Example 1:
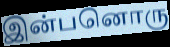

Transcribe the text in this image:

இன்பனொரு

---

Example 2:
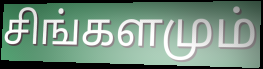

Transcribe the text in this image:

சிங்களமும்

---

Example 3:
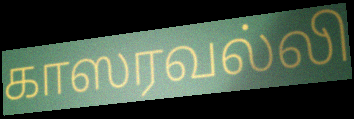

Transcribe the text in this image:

காஸரவல்லி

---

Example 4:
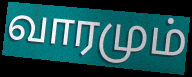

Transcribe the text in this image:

வாரமும்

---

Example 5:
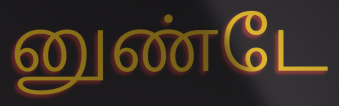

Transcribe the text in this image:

னுண்டே